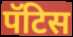
पॅटिस